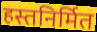
हस्तनिर्मित